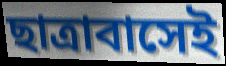
ছাত্রাবাসেই